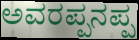
ಅವರಪ್ಪನಪ್ಪ